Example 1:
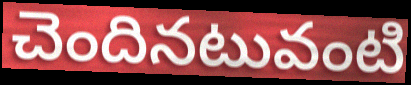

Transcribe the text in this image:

చెందినటువంటి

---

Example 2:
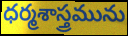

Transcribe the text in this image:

ధర్మశాస్త్రమును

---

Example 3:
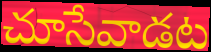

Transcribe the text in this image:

చూసేవాడట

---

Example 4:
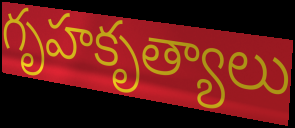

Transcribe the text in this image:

గృహకృత్యాలు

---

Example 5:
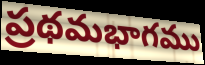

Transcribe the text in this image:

ప్రథమభాగము